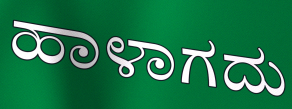
ಹಾಳಾಗದು